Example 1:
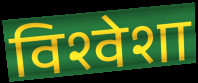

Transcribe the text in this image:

विश्वेशा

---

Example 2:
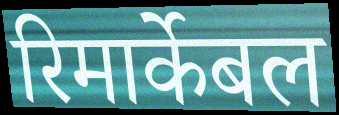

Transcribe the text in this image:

रिमार्केबल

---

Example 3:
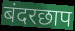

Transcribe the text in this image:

बंदरछाप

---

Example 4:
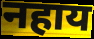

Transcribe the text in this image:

नहाय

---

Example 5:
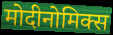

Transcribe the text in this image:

मोदीनोमिक्स